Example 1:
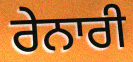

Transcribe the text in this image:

ਰੇਨਾਰੀ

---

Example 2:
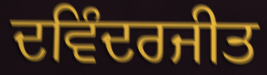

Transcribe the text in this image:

ਦਵਿੰਦਰਜੀਤ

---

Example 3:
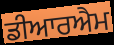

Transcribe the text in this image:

ਡੀਆਰਐਮ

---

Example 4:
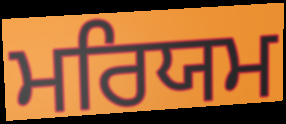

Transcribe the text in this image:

ਮਰਿਯਮ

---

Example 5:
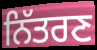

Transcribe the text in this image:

ਨਿੱਤਰਣ